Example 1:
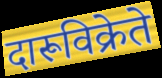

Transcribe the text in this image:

दारूविक्रेते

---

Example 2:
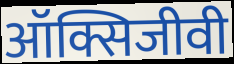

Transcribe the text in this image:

ऑक्सिजीवी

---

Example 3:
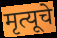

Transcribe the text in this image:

मृत्यूचे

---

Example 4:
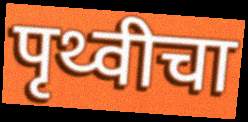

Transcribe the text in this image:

पृथ्वीचा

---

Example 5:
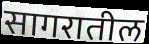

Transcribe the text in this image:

सागरातील